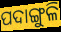
ପଦାଙ୍ଗୁଳି